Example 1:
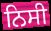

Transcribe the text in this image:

ਨਿਸੀ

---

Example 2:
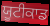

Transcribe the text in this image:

ਯੂਟੀਕਾਡ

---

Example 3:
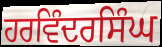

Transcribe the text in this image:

ਹਰਵਿੰਦਰਸਿੰਘ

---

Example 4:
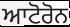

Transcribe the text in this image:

ਆਟੋਰੋਨ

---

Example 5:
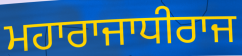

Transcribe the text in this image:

ਮਹਾਰਾਜਾਧੀਰਾਜ